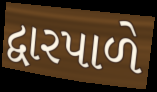
દ્વારપાળે